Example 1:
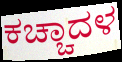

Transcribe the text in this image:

ಕಚ್ಚಾದಳ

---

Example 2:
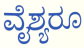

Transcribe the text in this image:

ವೈಶ್ಯರೂ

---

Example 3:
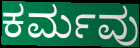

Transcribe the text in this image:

ಕರ್ಮವು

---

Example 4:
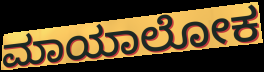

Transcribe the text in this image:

ಮಾಯಾಲೋಕ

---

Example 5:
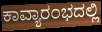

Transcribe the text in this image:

ಕಾವ್ಯಾರಂಭದಲ್ಲಿ